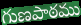
గుణపాఠము